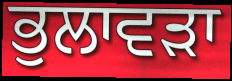
ਭੁਲਾਵੜਾ